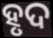
ହୃଦ